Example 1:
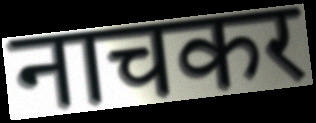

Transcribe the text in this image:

नाचकर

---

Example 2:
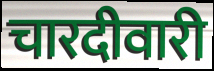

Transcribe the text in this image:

चारदीवारी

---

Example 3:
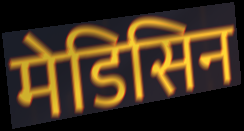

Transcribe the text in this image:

मेडिसिन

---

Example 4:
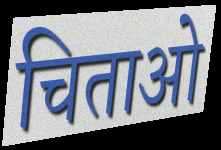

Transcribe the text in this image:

चिताओ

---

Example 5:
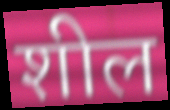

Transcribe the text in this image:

शील